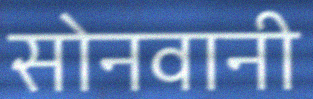
सोनवानी